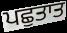
ਪਛੁਤਾਤ